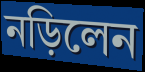
নড়িলেন